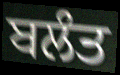
ਬਲੰਤ